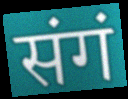
संगं